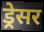
ड्रेसर